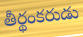
తీర్థంకరుడు